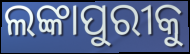
ଲଙ୍କାପୁରୀକୁ